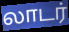
லாடர்